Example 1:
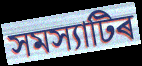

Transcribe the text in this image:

সমস্যাটিৰ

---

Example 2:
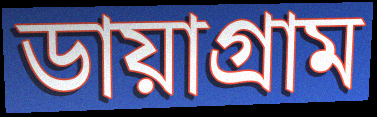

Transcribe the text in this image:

ডায়াগ্ৰাম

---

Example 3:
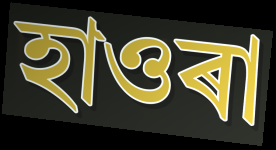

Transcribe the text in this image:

হাওৰা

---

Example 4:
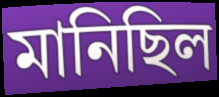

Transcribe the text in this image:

মানিছিল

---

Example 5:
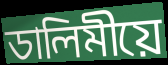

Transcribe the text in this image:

ডালিমীয়ে